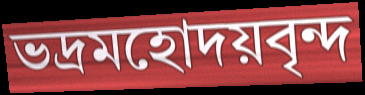
ভদ্রমহোদয়বৃন্দ